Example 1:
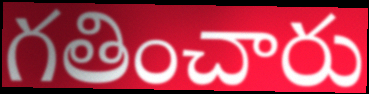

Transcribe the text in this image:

గతించారు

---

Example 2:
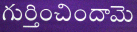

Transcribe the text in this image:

గుర్తించిందామె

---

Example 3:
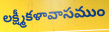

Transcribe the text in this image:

లక్ష్మీకళావాసముం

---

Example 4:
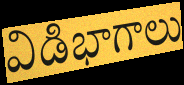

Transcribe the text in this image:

విడిభాగాలు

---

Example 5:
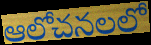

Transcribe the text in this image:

ఆలోచనలలో